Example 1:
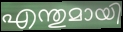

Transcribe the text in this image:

എന്തുമായി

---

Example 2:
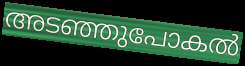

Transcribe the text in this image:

അടഞ്ഞുപോകൽ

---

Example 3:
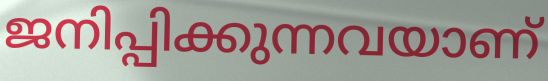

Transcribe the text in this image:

ജനിപ്പിക്കുന്നവയാണ്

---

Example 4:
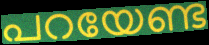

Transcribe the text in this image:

പറയേണ്ട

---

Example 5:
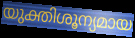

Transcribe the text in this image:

യുക്തിശൂന്യമായ